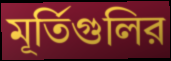
মূর্তিগুলির